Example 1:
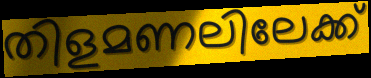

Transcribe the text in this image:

തിളമണലിലേക്ക്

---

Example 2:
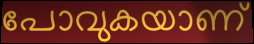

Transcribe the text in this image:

പോവുകയാണ്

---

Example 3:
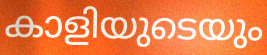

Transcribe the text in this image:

കാളിയുടെയും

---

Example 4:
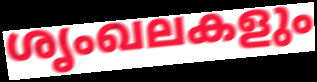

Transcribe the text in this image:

ശൃംഖലകളും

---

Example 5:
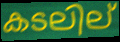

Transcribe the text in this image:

കടലില്